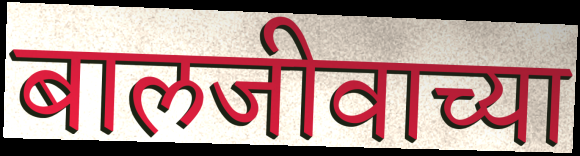
बालजीवाच्या